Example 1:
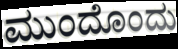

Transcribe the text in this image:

ಮುಂದೊಂದು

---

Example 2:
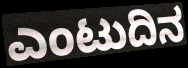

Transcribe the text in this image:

ಎಂಟುದಿನ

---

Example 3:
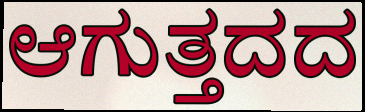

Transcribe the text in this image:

ಆಗುತ್ತದದ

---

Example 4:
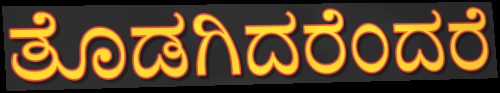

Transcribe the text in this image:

ತೊಡಗಿದರೆಂದರೆ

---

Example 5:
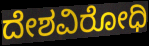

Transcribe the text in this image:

ದೇಶವಿರೋಧಿ